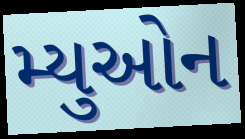
મ્યુઓન